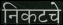
निकटचे